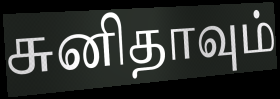
சுனிதாவும்